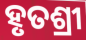
ହୃତଶ୍ରୀ